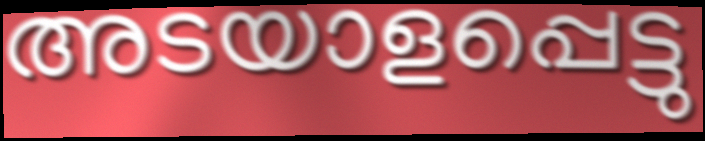
അടയാളപ്പെട്ടു